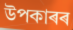
উপকাৰৰ